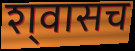
श्वासच